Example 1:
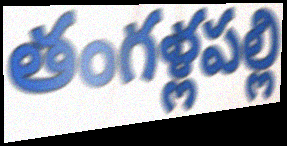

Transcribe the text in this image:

తంగళ్లపల్లి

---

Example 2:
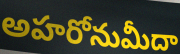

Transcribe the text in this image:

అహరోనుమీదా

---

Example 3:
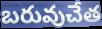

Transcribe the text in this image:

బరువుచేత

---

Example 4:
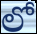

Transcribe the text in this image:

లో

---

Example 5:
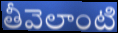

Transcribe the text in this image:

తీవెలాంటి